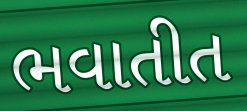
ભવાતીત